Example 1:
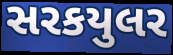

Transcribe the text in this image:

સરકયુલર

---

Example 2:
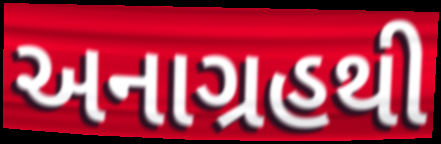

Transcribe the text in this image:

અનાગ્રહથી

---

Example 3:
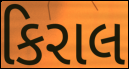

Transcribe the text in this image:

કિરાલ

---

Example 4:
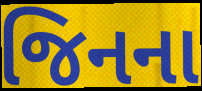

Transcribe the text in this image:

જિનના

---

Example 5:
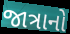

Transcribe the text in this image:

જાત્રાનો